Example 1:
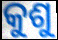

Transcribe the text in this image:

କୁଶୁ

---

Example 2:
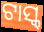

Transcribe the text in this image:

ଟାସ୍କ୍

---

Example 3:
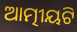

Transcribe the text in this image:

ଆତ୍ମୀୟଟି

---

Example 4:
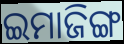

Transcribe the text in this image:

ଇମାଜିଙ୍ଗ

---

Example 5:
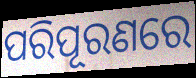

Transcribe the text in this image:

ପରିପୂରଣରେ